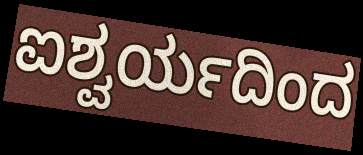
ಐಶ್ವರ್ಯದಿಂದ